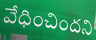
వేధించిందని